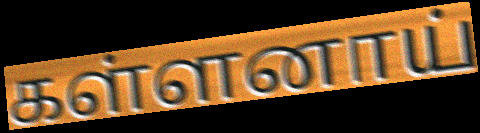
கள்ளனாய்